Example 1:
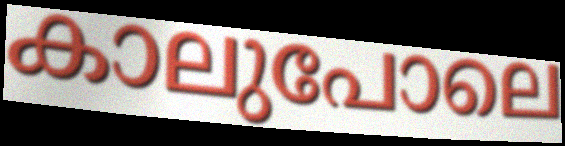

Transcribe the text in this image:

കാലുപോലെ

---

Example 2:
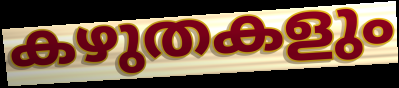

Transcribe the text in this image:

കഴുതകളും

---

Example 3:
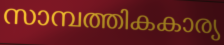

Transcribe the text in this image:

സാമ്പത്തികകാര്യ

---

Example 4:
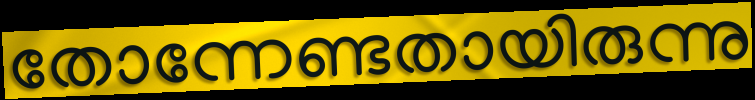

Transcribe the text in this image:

തോന്നേണ്ടതായിരുന്നു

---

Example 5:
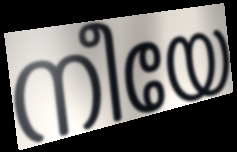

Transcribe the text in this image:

നീയേ